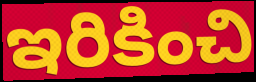
ఇరికించి